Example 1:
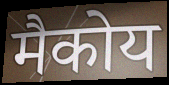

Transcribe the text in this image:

मैकोय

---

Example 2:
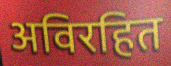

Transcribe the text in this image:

अविरहित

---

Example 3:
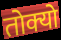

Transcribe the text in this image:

तोक्‍यो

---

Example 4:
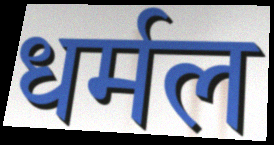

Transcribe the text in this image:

धर्मल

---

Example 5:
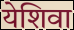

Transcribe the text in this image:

येशिवा